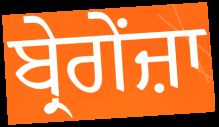
ਬ੍ਰੇਗੇਂਜ਼ਾ